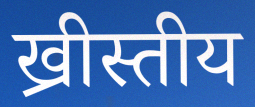
ख्रीस्तीय